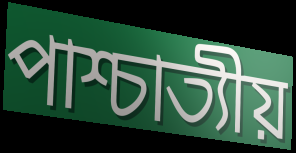
পাশ্চাত্যীয়